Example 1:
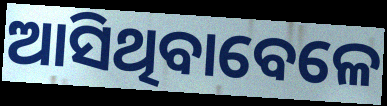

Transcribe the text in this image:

ଆସିଥିବାବେଳେ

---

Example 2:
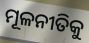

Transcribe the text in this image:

ମୂଳନୀତିକୁ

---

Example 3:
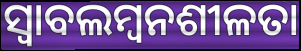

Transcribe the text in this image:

ସ୍ୱାବଲମ୍ୱନଶୀଳତା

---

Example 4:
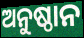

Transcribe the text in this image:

ଅନୁଷ୍ଠାନ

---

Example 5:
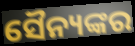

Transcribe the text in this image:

ସୈନ୍ୟଙ୍କର